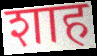
शाह